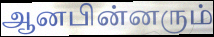
ஆனபின்னரும்